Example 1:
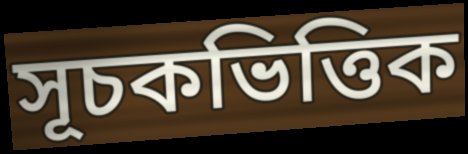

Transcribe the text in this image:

সূচকভিত্তিক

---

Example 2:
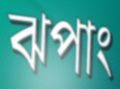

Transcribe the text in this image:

ঝপাং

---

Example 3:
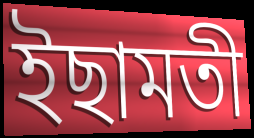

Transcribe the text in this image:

ইছামতী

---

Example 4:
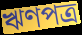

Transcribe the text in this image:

ঋণপত্র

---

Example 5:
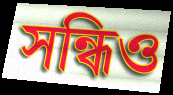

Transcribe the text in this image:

সন্ধিও